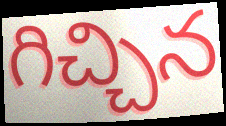
గిచ్చిన